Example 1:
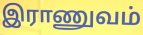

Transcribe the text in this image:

இராணுவம்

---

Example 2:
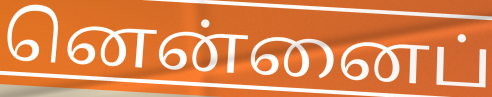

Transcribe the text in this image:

னென்னைப்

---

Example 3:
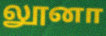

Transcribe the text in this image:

லூனா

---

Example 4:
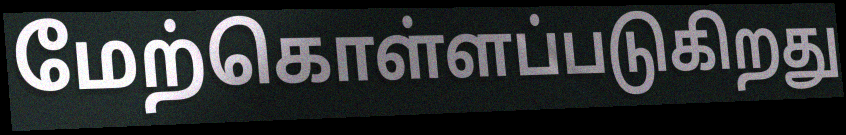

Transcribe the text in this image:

மேற்கொள்ளப்படுகிறது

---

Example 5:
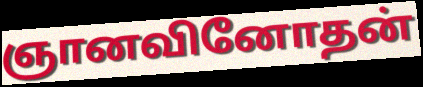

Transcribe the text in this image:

ஞானவினோதன்